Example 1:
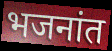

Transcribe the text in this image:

भजनांत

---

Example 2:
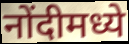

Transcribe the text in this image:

नोंदीमध्ये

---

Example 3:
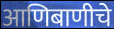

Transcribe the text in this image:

आणिबाणीचे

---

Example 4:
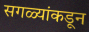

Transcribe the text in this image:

सगळ्यांकडून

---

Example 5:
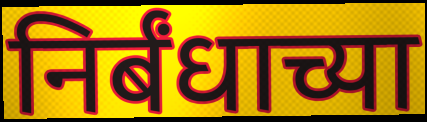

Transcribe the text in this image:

निर्बंधाच्या